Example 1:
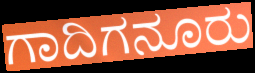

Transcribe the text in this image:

ಗಾದಿಗನೂರು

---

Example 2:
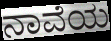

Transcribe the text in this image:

ನಾವೆಯ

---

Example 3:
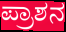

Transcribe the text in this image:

ಪ್ರಾಶನ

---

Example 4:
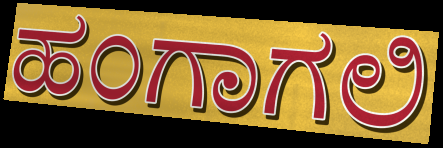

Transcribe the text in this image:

ಹಂಗಾಗಲಿ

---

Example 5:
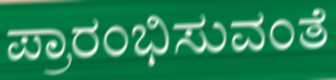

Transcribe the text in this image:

ಪ್ರಾರಂಭಿಸುವಂತೆ